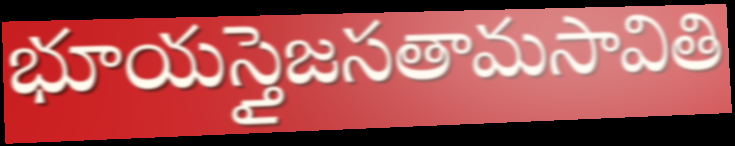
భూయస్తైజసతామసావితి